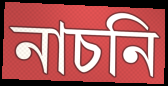
নাচনি